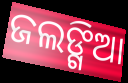
ଜଲଙ୍ଗିଆ